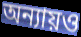
অন্যায়ও